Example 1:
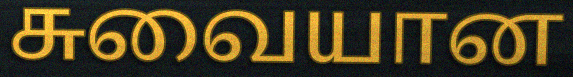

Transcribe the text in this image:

சுவையான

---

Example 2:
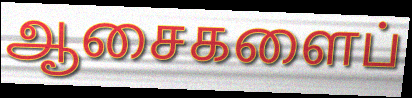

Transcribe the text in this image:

ஆசைகளைப்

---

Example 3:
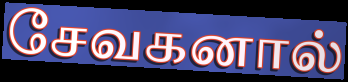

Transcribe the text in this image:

சேவகனால்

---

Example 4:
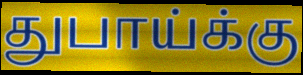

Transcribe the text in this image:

துபாய்க்கு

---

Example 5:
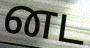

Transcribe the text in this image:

னட